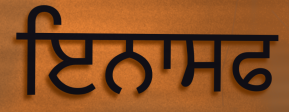
ਇਨਾਸਫ